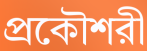
প্রকৌশরী